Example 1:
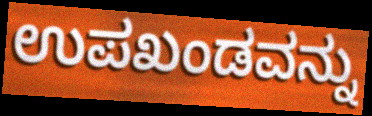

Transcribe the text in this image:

ಉಪಖಂಡವನ್ನು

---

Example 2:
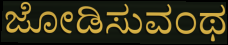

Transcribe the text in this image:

ಜೋಡಿಸುವಂಥ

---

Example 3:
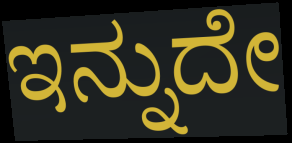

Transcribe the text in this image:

ಇನ್ನುದೇ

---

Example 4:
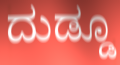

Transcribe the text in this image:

ದುಡ್ಡೂ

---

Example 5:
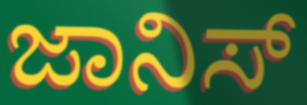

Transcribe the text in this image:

ಜಾನಿಸ್